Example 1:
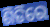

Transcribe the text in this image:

ଶିଡିରେ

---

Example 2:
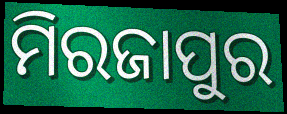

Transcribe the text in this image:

ମିରଜାପୁର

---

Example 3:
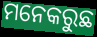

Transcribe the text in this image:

ମନେକରୁଛ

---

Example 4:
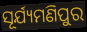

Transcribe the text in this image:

ସୂର୍ଯ୍ୟମଣିପୁର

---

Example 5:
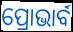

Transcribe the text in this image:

ପ୍ରୋଭାର୍ବ